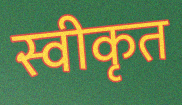
स्‍वीकृत